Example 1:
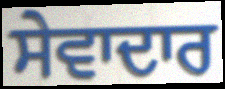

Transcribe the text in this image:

ਸੇਵਾਦਾਰ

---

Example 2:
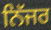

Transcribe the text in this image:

ਨਿੱਜਰ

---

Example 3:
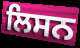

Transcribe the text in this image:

ਲਿਸਨ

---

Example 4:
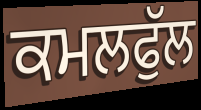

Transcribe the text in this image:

ਕਮਲਫੁੱਲ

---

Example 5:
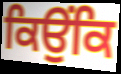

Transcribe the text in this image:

ਕਿਉਂਕਿ